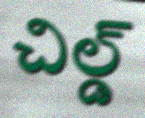
చిల్డ్